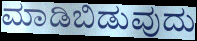
ಮಾಡಿಬಿಡುವುದು